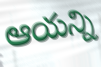
ఆయన్ని